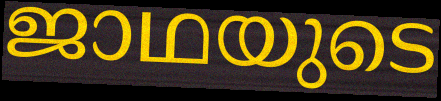
ജാഥയുടെ